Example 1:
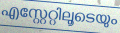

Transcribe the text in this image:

എസ്റ്റേറ്റിലൂടെയും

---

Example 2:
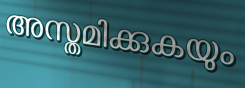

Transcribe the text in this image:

അസ്തമിക്കുകയും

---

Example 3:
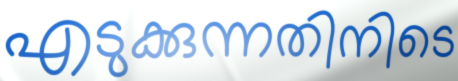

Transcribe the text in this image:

എടുക്കുന്നതിനിടെ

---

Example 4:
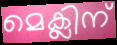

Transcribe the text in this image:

മെക്ലിന്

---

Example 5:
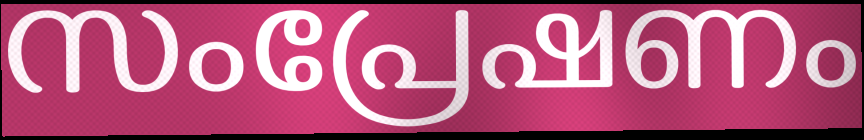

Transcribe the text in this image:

സംപ്രേഷണം